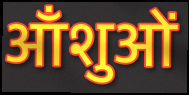
आँशुओं